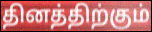
தினத்திற்கும்